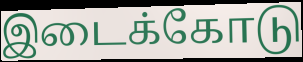
இடைக்கோடு